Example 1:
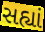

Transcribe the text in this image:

સહ્યાં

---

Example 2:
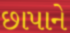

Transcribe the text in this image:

છાપાને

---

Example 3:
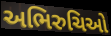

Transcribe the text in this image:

અભિરુચિઓ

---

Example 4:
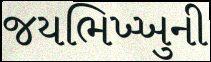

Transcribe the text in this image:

જયભિખ્ખુની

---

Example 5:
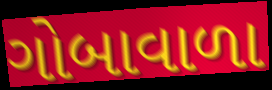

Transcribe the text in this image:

ગોબાવાળા